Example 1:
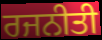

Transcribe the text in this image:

ਰਜਨੀਤੀ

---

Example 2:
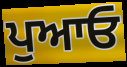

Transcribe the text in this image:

ਪੁਆਓ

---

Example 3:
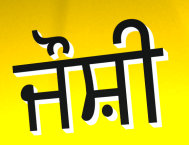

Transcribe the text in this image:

ਜੌਸ਼ੀ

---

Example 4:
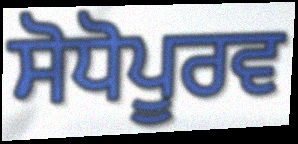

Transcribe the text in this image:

ਸੋਧੋਪੂਰਵ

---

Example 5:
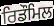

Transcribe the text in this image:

ਰਿਡੌਮਿਲ